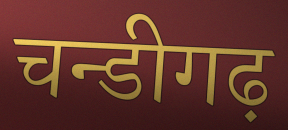
चन्डीगढ़